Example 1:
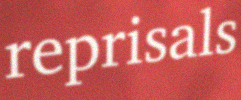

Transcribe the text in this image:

reprisals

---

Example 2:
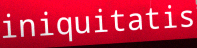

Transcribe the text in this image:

iniquitatis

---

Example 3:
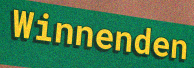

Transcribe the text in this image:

Winnenden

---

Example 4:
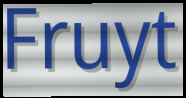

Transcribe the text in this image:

Fruyt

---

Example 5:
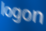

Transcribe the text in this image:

logon